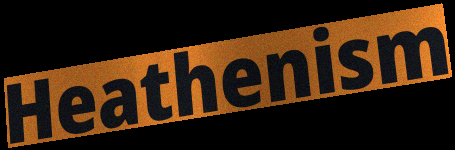
Heathenism